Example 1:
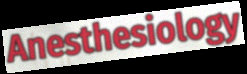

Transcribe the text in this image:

Anesthesiology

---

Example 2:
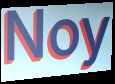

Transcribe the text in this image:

Noy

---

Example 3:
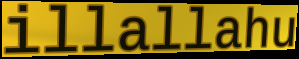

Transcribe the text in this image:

illallahu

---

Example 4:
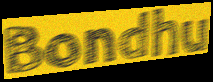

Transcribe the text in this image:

Bondhu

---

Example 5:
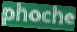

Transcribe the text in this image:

phoche